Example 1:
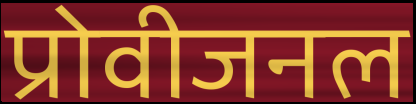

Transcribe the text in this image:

प्रोवीजनल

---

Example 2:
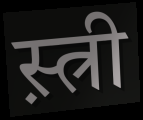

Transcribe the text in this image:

स़्त्री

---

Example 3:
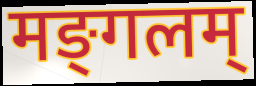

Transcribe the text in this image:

मङ्गलम्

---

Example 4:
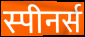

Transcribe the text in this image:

स्पीनर्स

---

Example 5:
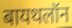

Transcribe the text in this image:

बायथलॉन